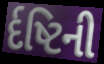
ર્દષ્ટિની